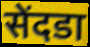
सेंदडा